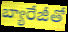
బ్యారేజీతో